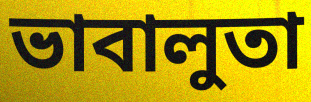
ভাবালুতা